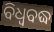
ବିଧ୍ଵବଦ୍ଧ